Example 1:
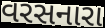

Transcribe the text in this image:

વરસનારા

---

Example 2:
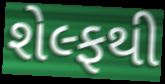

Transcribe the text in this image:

શેલ્ફથી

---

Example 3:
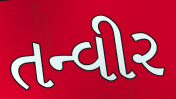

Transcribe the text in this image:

તન્વીર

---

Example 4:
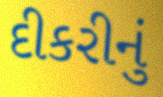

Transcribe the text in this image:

દીકરીનું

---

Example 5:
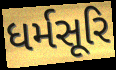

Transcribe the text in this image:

ધર્મસૂરિ